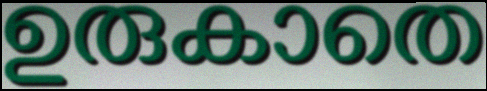
ഉരുകാതെ